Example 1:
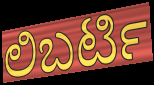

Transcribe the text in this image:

ಲಿಬರ್ಟಿ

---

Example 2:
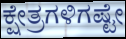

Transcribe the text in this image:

ಕ್ಷೇತ್ರಗಳಿಗಷ್ಟೇ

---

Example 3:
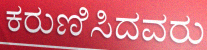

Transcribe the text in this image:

ಕರುಣಿಸಿದವರು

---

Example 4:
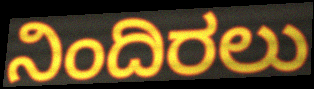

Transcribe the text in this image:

ನಿಂದಿರಲು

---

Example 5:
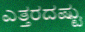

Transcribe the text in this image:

ಎತ್ತರದಷ್ಟು